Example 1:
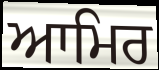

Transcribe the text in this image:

ਆਮਿਰ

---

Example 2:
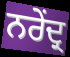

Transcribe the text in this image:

ਨਰੇਂਦ੍ਰ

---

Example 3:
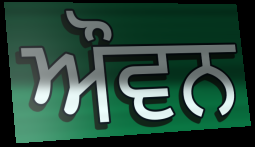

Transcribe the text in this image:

ਔਵਨ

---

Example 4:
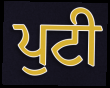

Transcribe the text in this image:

ਪੁਟੀ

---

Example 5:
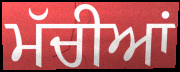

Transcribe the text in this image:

ਮੱਚੀਆਂ